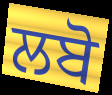
ਲਬੋ